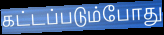
கட்டப்படும்போது